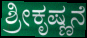
ಶ್ರೀಕೃಷ್ಣನೆ